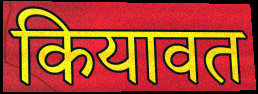
कियावत